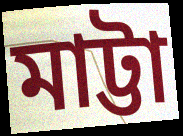
মাট্টা